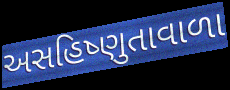
અસહિષ્ણુતાવાળા